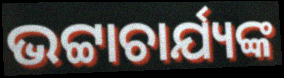
ଭଟ୍ଟାଚାର୍ଯ୍ୟଙ୍କ